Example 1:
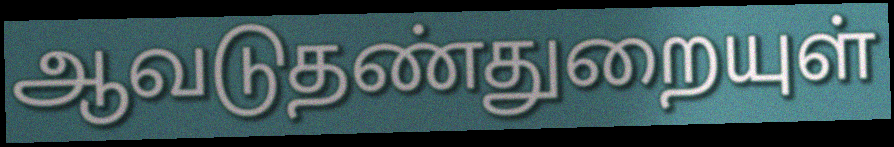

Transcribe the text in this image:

ஆவடுதண்துறையுள்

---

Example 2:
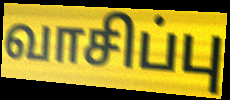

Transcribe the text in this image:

வாசிப்பு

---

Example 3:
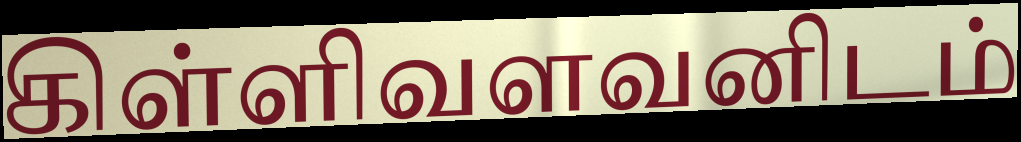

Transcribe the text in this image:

கிள்ளிவளவனிடம்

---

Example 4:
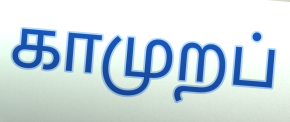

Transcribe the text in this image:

காமுறப்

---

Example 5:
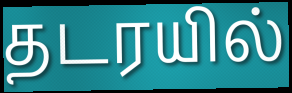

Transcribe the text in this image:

தடரயில்